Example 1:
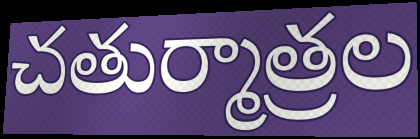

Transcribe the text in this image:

చతుర్మాత్రల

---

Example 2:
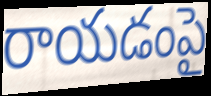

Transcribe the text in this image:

రాయడంపై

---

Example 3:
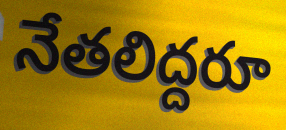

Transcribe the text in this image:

నేతలిద్దరూ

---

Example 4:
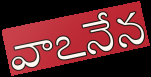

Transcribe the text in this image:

వాఽనేన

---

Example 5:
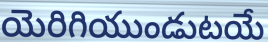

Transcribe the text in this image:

యెరిగియుండుటయే